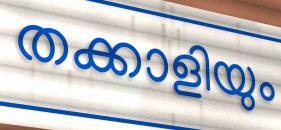
തക്കാളിയും